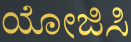
ಯೋಜಿಸಿ